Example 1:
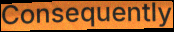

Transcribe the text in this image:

Consequently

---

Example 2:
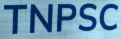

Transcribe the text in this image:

TNPSC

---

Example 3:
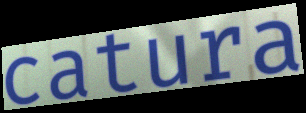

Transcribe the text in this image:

catura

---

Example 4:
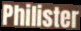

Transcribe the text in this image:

Philister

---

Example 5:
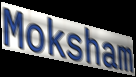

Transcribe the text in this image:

Moksham